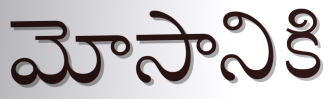
మోసానికి